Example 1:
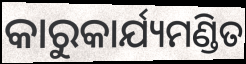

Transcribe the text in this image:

କାରୁକାର୍ଯ୍ୟମଣ୍ଡିତ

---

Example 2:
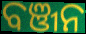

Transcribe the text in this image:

ବଞ୍ଜନ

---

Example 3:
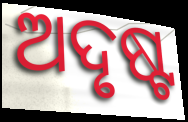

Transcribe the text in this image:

ଅଦୃଷ୍ଟ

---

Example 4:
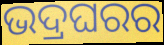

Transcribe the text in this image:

ଭଦ୍ରଘରର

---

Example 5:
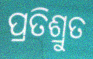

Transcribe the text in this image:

ପ୍ରତିଶ୍ରୁତ